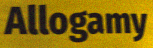
Allogamy